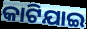
କାଟିଯାଇ